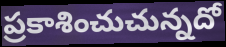
ప్రకాశించుచున్నదో